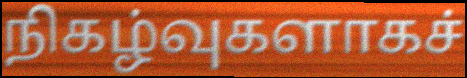
நிகழ்வுகளாகச்